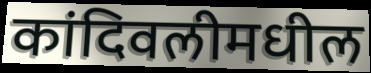
कांदिवलीमधील